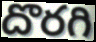
దొరగి